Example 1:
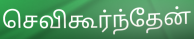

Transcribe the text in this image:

செவிகூர்ந்தேன்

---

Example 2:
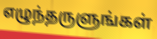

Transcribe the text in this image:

எழுந்தருளுங்கள்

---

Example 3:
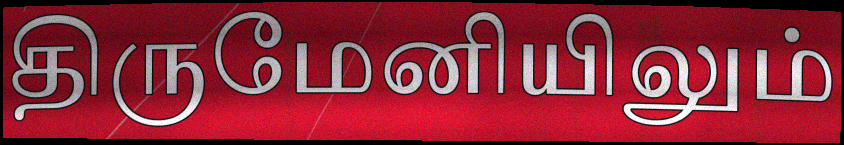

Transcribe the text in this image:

திருமேனியிலும்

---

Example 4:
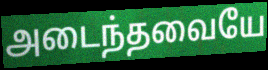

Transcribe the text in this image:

அடைந்தவையே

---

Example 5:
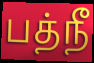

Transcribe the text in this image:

பத்நீ